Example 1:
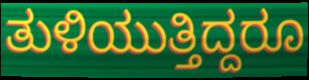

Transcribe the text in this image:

ತುಳಿಯುತ್ತಿದ್ದರೂ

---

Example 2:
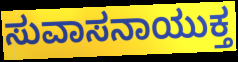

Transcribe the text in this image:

ಸುವಾಸನಾಯುಕ್ತ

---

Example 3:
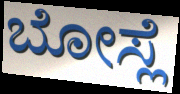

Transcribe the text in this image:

ಬೋಸ್ಲೆ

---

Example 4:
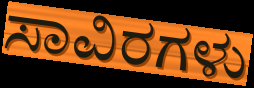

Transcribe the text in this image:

ಸಾವಿರಗಳು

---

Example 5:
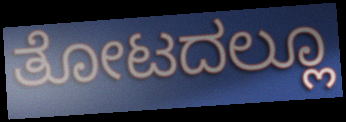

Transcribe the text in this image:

ತೋಟದಲ್ಲೂ